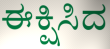
ಈಕ್ಷಿಸಿದ